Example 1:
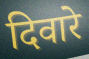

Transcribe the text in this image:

दिवारे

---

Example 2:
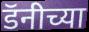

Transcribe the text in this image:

डॅनीच्या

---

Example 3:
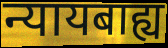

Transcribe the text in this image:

न्यायबाह्य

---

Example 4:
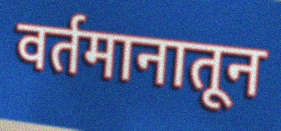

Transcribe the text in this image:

वर्तमानातून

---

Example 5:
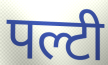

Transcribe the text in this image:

पल्टी